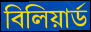
বিলিয়ার্ড